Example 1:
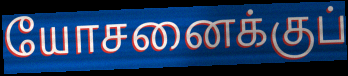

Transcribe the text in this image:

யோசனைக்குப்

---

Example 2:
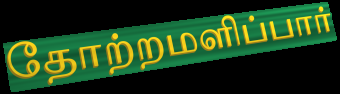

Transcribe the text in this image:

தோற்றமளிப்பார்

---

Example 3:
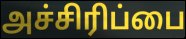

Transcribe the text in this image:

அச்சிரிப்பை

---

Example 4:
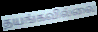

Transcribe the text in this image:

தயங்கவில்லை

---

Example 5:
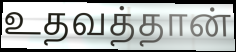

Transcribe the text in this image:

உதவத்தான்